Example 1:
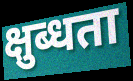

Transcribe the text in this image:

क्षुब्धता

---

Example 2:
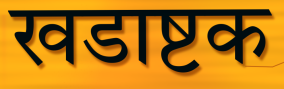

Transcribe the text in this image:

खडाष्टक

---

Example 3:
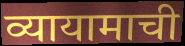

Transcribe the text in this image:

व्यायामाची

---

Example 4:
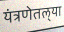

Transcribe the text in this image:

यंत्रणेतल्या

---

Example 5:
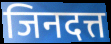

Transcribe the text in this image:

जिनदत्त